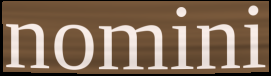
nomini